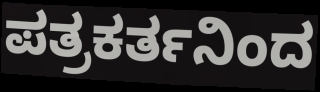
ಪತ್ರಕರ್ತನಿಂದ